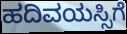
ಹದಿವಯಸ್ಸಿಗೆ